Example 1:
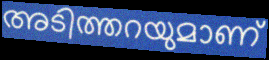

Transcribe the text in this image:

അടിത്തറയുമാണ്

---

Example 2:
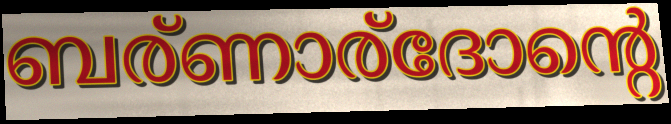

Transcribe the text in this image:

ബര്ണാര്ദോന്റെ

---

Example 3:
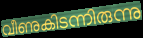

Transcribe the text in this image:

വീണുകിടന്നിരുന്നു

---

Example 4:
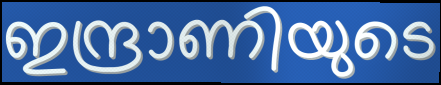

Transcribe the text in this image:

ഇന്ദ്രാണിയുടെ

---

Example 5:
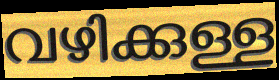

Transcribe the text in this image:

വഴിക്കുള്ള